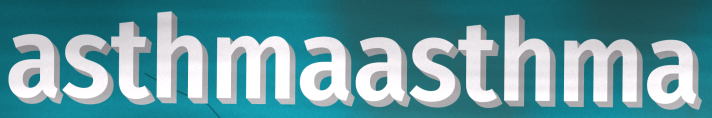
asthmaasthma